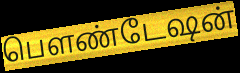
பௌண்டேஷன்